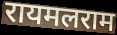
रायमलराम